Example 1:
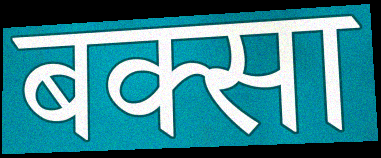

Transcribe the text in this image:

बक्सा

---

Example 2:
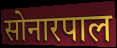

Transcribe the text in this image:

सोनारपाल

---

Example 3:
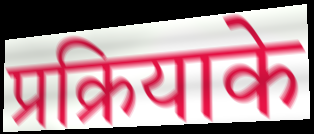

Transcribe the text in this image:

प्रक्रियाके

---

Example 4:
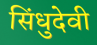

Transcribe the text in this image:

सिंधुदेवी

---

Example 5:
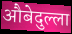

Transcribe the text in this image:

औबेदुल्ला